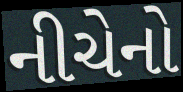
નીચેનો